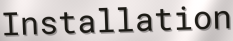
Installation